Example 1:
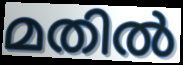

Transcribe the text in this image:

മതിൽ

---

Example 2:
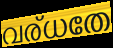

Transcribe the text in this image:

വര്ധതേ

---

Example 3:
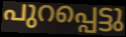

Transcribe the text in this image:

പുറപ്പെട്ടു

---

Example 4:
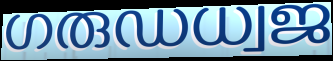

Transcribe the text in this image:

ഗരുഡധ്വജ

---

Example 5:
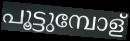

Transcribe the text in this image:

പൂട്ടുമ്പോള്